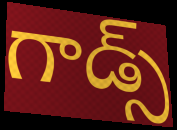
గాడ్స్